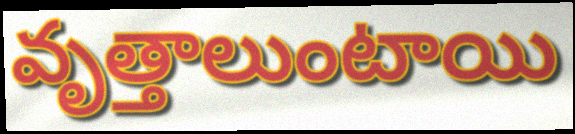
వృత్తాలుంటాయి